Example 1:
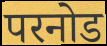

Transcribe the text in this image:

परनोड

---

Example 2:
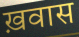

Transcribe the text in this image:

ख़वास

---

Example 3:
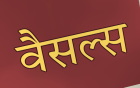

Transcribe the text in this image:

वैसल्स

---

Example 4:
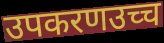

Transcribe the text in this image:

उपकरणउच्च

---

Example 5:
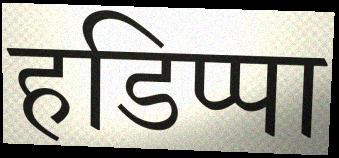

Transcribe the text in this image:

हडिप्पा